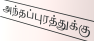
அந்தப்புரத்துக்கு